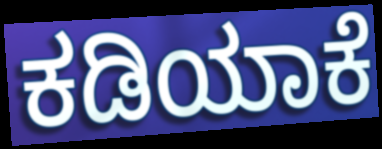
ಕಡಿಯಾಕೆ